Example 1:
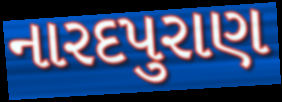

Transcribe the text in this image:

નારદપુરાણ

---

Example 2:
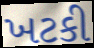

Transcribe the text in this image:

ખટકી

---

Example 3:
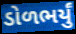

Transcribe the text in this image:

ડોળભર્યું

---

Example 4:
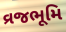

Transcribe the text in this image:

વ્રજભૂમિ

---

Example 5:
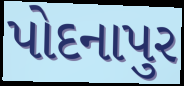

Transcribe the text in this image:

પોદનાપુર